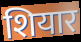
शियार